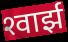
श्वार्झ